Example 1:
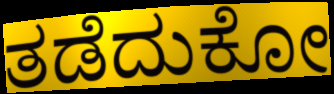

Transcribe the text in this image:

ತಡೆದುಕೋ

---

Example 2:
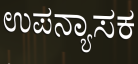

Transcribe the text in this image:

ಉಪನ್ಯಾಸಕ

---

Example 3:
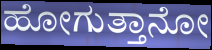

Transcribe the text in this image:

ಹೋಗುತ್ತಾನೋ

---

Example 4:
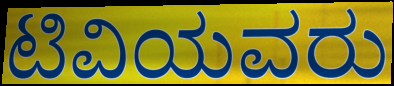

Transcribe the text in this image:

ಟಿವಿಯವರು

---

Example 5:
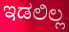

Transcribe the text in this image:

ಇಡಲಿಲ್ಲ